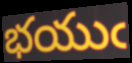
భయుఁ